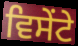
ਵਿਸੇਂਟੇ